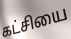
கட்சியை